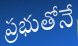
ప్రభుతోనే